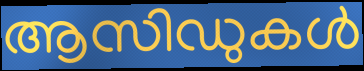
ആസിഡുകൾ